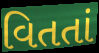
વિતતાં